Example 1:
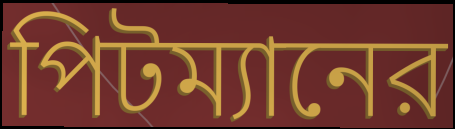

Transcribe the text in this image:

পিটম্যানের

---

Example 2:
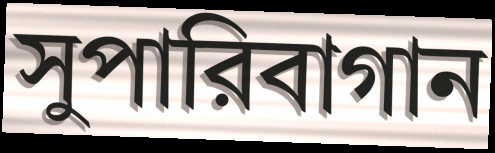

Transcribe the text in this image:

সুপারিবাগান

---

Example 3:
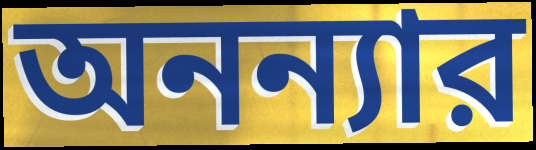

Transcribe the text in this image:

অনন্যার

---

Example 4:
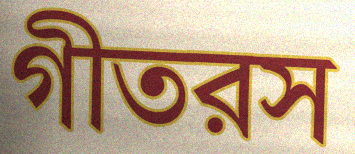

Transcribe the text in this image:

গীতরস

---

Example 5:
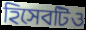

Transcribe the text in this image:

হিসেবটিও